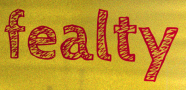
fealty